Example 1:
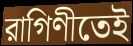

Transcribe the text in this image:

রাগিণীতেই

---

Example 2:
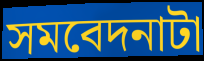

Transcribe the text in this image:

সমবেদনাটা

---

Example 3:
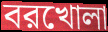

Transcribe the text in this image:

বরখোলা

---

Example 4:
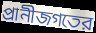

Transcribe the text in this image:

প্রানীজগতের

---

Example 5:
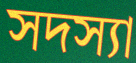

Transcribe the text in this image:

সদস্যা